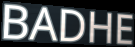
BADHE